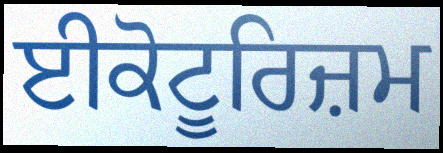
ਈਕੋਟੂਰਿਜ਼ਮ